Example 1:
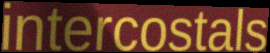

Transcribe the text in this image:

intercostals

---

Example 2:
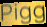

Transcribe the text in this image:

Pigg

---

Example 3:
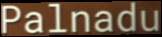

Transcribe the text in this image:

Palnadu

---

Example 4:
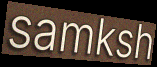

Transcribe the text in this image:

samksh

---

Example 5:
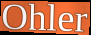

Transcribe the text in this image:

Ohler